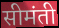
सीमंती